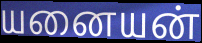
யனையன்